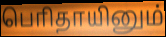
பெரிதாயினும்